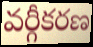
వర్గీకరణ